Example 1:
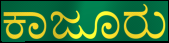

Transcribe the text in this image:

ಕಾಜೂರು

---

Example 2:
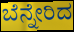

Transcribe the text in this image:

ಬೆನ್ನೇರಿದ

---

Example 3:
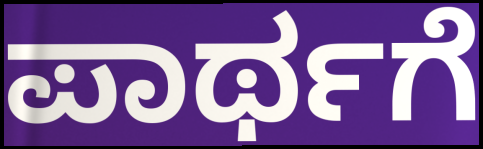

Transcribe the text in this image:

ಪಾರ್ಥಗೆ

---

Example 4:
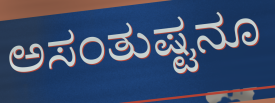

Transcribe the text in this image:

ಅಸಂತುಷ್ಟನೂ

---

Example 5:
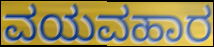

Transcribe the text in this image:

ವಯವಹಾರ